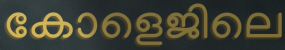
കോളെജിലെ